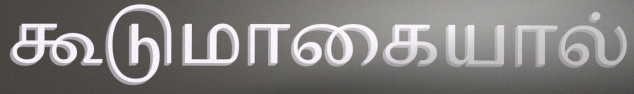
கூடுமாகையால்